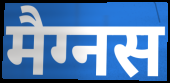
मैग्नस